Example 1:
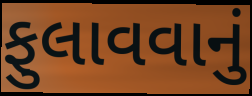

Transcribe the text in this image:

ફુલાવવાનું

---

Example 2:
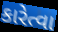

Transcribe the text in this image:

કારેત્વા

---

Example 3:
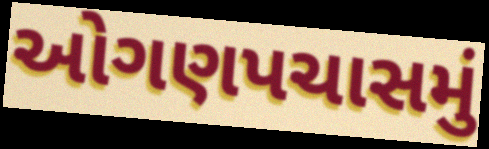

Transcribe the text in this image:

ઓગણપચાસમું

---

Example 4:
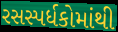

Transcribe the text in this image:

રસસ્પર્ધકોમાંથી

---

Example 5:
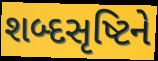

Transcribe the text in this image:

શબ્દસૃષ્ટિને